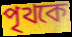
পৃথকে